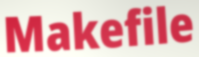
Makefile